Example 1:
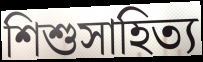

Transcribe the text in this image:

শিশুসাহিত্য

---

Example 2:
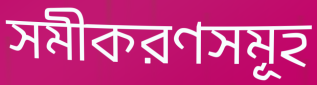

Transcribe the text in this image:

সমীকরণসমূহ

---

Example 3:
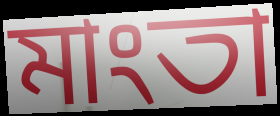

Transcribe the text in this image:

মাংতা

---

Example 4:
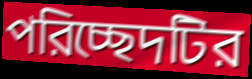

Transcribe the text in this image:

পরিচ্ছেদটির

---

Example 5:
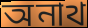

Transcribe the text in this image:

অনাথ